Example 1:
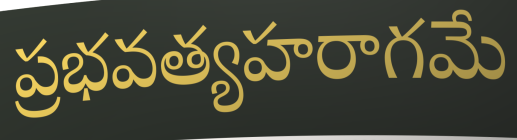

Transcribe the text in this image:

ప్రభవత్యహరాగమే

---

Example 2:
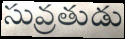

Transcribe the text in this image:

సువ్రతుడు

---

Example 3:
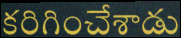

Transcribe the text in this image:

కరిగించేశాడు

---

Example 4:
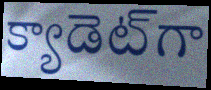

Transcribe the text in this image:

క్యాడెట్‌గా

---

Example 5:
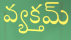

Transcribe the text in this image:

వ్యక్తమ్